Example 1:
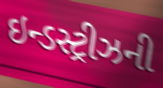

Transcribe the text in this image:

ઇન્ડસ્ટ્રીઝની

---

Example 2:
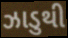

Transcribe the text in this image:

ઝાડુથી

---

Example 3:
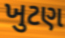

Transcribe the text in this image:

ખુટણ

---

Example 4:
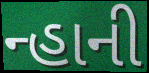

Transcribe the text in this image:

ન્હાની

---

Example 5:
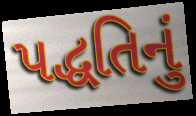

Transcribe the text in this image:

પદ્ધતિનું